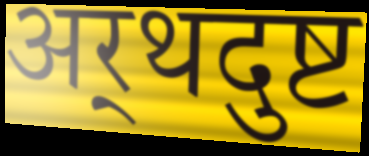
अर्थदुष्ट